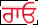
ਰਾਓ